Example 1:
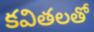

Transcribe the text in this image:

కవితలతో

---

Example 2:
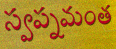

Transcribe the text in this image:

స్వప్నమంత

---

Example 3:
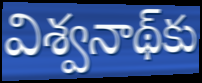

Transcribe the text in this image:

విశ్వనాథ్‌కు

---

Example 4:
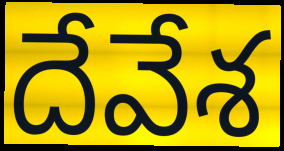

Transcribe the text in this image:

దేవేశ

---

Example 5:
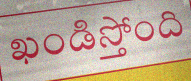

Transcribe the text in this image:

ఖండిస్తోంది